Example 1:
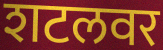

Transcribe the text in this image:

शटलवर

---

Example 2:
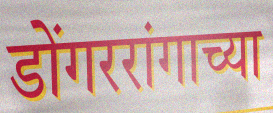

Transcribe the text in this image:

डोंगररांगाच्या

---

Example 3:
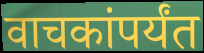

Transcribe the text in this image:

वाचकांपर्यंत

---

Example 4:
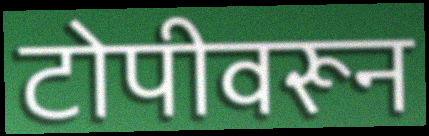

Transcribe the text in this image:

टोपीवरून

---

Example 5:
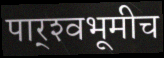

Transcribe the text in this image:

पार्श्वभूमीच